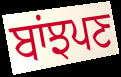
ਬਾਂਝਪਣ